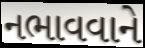
નભાવવાને